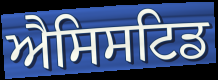
ਐਸਿਸਟਿਡ